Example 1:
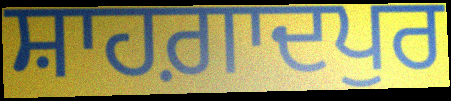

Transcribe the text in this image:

ਸ਼ਾਹਗ਼ਾਦਪੁਰ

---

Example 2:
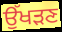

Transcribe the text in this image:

ਉੱਖੜਣ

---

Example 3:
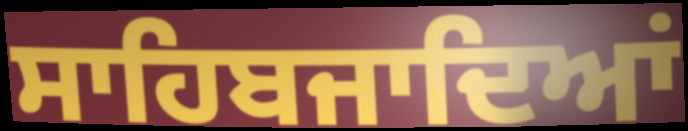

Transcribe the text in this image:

ਸਾਹਿਬਜਾਦਿਆਂ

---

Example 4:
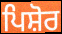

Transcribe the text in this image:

ਪਿਸ਼ੋਰ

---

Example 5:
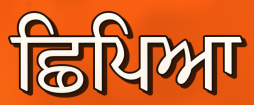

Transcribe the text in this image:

ਛਿਪਿਆ